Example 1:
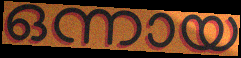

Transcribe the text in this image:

ഒന്നായ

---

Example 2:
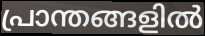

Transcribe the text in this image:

പ്രാന്തങ്ങളിൽ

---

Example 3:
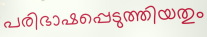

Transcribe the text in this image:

പരിഭാഷപ്പെടുത്തിയതും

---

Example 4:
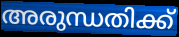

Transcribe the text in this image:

അരുന്ധതിക്ക്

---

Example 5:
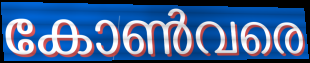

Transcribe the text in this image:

കോൺവരെ